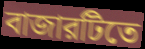
বাজারটিতে